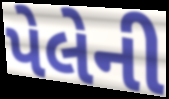
પેલેની